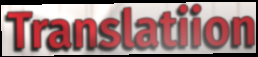
Translatiion